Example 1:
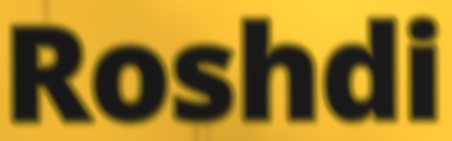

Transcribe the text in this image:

Roshdi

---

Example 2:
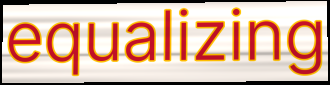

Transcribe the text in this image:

equalizing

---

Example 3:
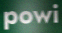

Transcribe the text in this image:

powi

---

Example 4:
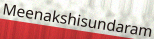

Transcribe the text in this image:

Meenakshisundaram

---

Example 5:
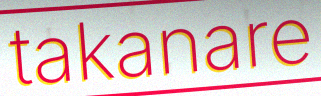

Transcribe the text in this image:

takanare